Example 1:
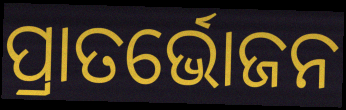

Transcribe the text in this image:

ପ୍ରାତର୍ଭୋଜନ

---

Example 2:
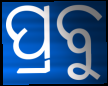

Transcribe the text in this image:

ପ୍ରବୁ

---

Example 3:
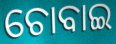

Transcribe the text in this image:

ଚୋବାଇ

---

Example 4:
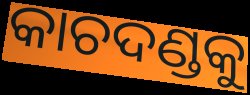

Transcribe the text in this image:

କାଚଦଣ୍ଡକୁ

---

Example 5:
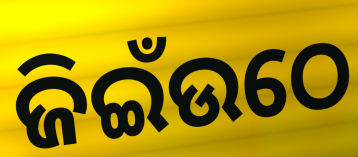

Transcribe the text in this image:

ଜିଇଁଉଠେ